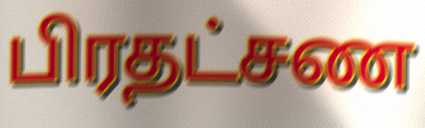
பிரதட்சண